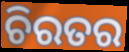
ଚିରତର